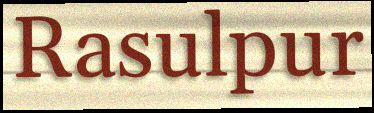
Rasulpur